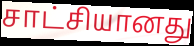
சாட்சியானது